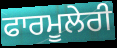
ਫਾਰਮੂਲੇਰੀ